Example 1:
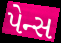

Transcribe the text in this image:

પેન્સ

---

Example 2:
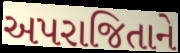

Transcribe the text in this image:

અપરાજિતાને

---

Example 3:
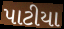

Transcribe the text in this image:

પાટીયા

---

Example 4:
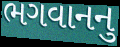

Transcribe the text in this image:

ભગવાનનુ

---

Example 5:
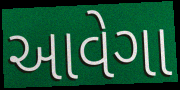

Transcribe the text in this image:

આવેગા